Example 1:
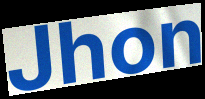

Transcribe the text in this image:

Jhon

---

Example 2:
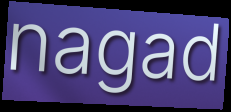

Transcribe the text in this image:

nagad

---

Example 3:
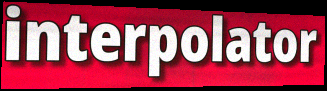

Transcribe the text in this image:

interpolator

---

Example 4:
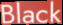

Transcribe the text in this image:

Black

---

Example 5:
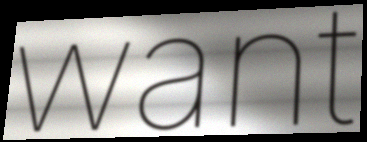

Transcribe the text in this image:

want